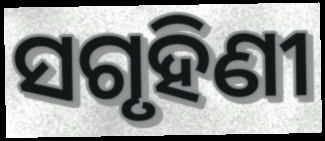
ସଗୃହିଣୀ